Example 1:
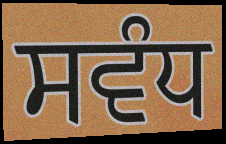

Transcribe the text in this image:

ਸਵੰਧ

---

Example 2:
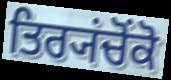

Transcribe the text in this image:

ਤਿਰ੍ਯਂਚੋਂਕੋ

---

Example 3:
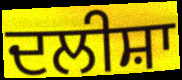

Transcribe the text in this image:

ਦਲੀਸ਼ਾ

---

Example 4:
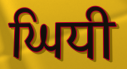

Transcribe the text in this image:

ਘਿਧੀ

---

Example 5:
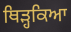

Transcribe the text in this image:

ਥਿੜ੍ਹਕਿਆ